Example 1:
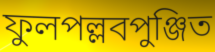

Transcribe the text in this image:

ফুলপল্লবপুঞ্জিত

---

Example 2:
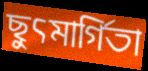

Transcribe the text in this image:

ছুৎমার্গিতা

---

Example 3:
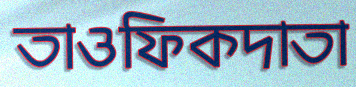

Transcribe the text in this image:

তাওফিকদাতা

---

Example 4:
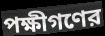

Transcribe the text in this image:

পক্ষীগণের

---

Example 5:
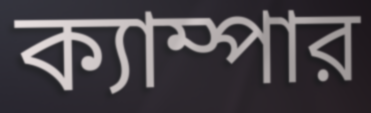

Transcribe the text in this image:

ক্যাম্পার